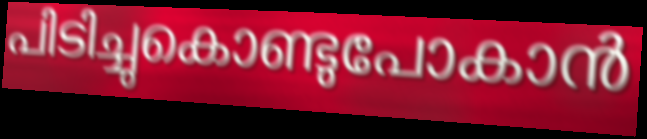
പിടിച്ചുകൊണ്ടുപോകാൻ